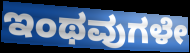
ಇಂಥವುಗಳೇ